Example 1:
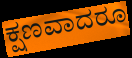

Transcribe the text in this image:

ಕ್ಷಣವಾದರೂ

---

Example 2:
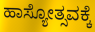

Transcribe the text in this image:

ಹಾಸ್ಯೋತ್ಸವಕ್ಕೆ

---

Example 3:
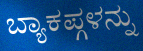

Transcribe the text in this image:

ಬ್ಯಾಕಪ್ಗಳನ್ನು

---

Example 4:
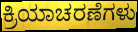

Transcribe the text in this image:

ಕ್ರಿಯಾಚರಣೆಗಳು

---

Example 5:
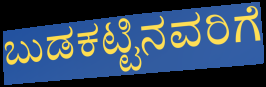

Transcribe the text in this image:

ಬುಡಕಟ್ಟಿನವರಿಗೆ